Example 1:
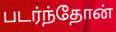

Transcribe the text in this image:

படர்ந்தோன்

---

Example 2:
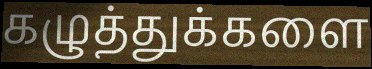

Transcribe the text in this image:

கழுத்துக்களை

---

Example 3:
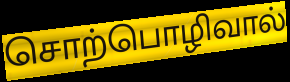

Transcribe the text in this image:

சொற்பொழிவால்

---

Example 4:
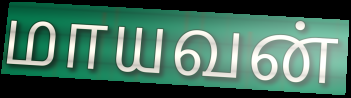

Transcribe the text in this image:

மாயவன்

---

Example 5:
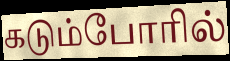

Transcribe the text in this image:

கடும்போரில்